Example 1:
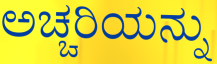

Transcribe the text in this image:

ಅಚ್ಚರಿಯನ್ನು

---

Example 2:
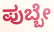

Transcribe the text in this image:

ಪುಬ್ಬೇ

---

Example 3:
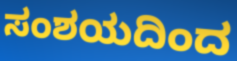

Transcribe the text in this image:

ಸಂಶಯದಿಂದ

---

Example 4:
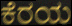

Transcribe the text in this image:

ಕೆರಯ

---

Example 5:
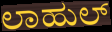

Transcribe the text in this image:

ಲಾಹುಲ್